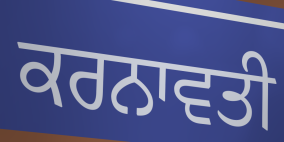
ਕਰਨਾਵਤੀ